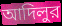
আদিলুর